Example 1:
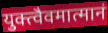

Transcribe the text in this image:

युक्त्वैवमात्मानं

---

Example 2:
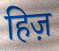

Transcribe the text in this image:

हिज़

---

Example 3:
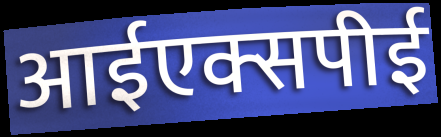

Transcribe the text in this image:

आईएक्सपीई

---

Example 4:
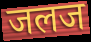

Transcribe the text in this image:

जलज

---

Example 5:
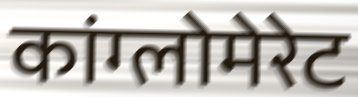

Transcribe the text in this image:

कांग्लोमेरेट